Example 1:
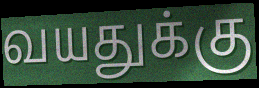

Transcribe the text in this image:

வயதுக்கு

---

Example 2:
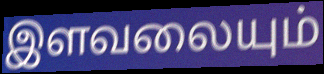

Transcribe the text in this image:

இளவலையும்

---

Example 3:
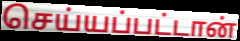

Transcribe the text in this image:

செய்யப்பட்டான்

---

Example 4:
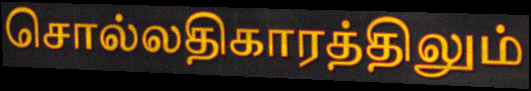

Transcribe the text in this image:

சொல்லதிகாரத்திலும்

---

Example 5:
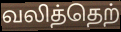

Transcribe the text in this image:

வலித்தெற்